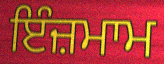
ਇੰਜ਼ਮਾਮ